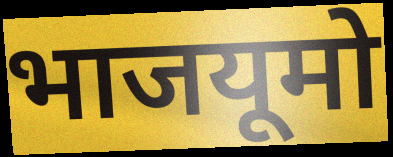
भाजयूमो